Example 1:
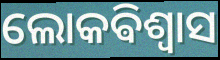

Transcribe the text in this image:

ଲୋକଵିଶ୍ଵାସ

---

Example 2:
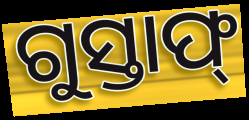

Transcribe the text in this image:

ଗୁସ୍ତାଫ୍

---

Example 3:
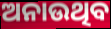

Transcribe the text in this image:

ଅନାଉଥିବ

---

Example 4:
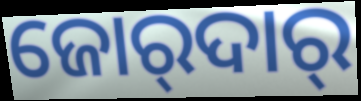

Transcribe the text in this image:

ଜୋର୍‍ଦାର୍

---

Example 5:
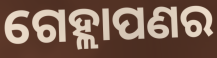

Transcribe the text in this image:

ଗେହ୍ଲାପଣର